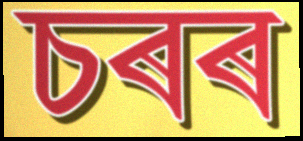
চৰৰ